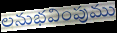
లనుభవింపుము